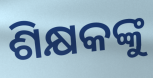
ଶିକ୍ଷକଙ୍କୁ